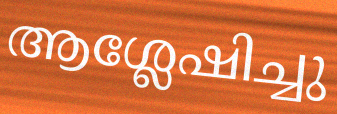
ആശ്ലേഷിച്ചു